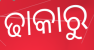
ଢାକାରୁ